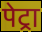
पेट्रा